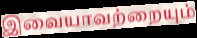
இவையாவற்றையும்